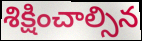
శిక్షించాల్సిన